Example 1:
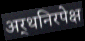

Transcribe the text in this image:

अर्थनिरपेक्ष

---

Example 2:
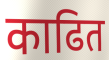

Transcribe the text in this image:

काढित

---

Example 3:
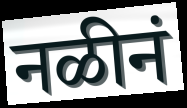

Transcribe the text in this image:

नळीनं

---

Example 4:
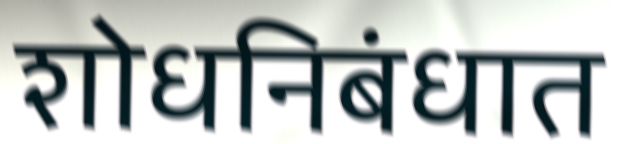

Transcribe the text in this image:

शोधनिबंधात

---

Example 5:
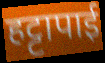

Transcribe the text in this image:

हट्टापाई